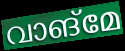
വാങ്മേ